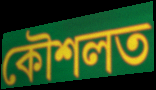
কৌশলত